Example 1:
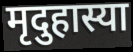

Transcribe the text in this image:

मृदुहास्या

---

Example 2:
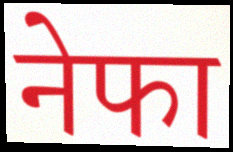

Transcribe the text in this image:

नेफा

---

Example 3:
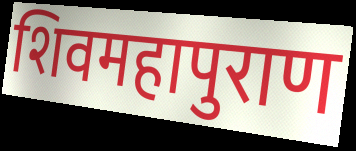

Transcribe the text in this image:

शिवमहापुराण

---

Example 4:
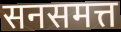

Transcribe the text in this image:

सनसमत्त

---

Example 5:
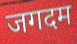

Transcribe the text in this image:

जगदम